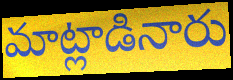
మాట్లాడినారు